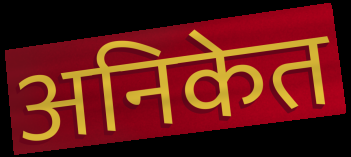
अनिकेत